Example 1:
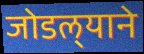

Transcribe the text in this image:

जोडल्याने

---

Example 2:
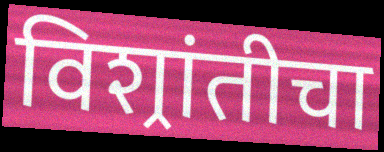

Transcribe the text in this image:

विश्रांतीचा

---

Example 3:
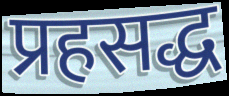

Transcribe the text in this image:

प्रहसद्ध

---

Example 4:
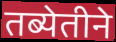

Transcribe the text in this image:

तब्येतीने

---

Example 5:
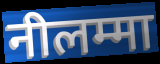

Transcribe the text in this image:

नीलम्मा